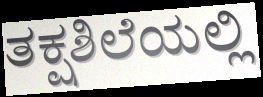
ತಕ್ಷಶಿಲೆಯಲ್ಲಿ